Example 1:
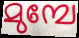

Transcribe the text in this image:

മുമ്പേ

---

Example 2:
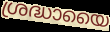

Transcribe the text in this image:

ശ്രദ്ധായൈ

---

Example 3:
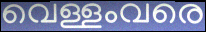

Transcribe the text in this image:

വെള്ളംവരെ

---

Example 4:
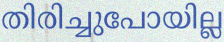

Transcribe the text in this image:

തിരിച്ചുപോയില്ല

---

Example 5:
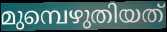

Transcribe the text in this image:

മുമ്പെഴുതിയത്